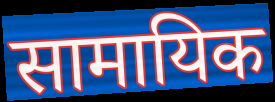
सामायिक